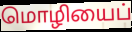
மொழியைப்